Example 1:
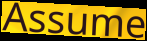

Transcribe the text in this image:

Assume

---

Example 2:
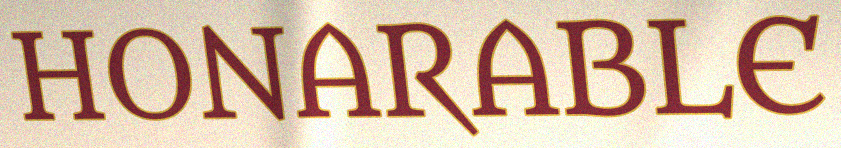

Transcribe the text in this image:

HONARABLE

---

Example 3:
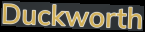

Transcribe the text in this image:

Duckworth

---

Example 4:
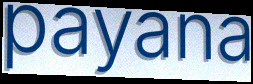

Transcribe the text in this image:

payana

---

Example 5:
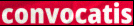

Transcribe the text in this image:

convocatis